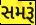
સમરૂં